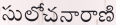
సులోచనారాణి